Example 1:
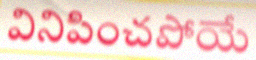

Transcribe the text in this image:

వినిపించపోయే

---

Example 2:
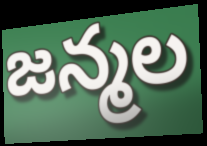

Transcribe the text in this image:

జన్మల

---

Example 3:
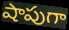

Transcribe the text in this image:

షాపుగా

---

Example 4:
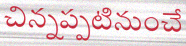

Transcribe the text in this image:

చిన్నప్పటినుంచే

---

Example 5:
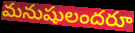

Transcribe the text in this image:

మనుషులందరూ